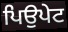
ਪਿਉਪੇਟ